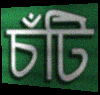
চঁটি